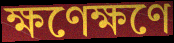
ক্ষণেক্ষণে